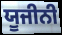
ਯੂਜੀਨੀ